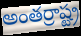
అంతర్రాష్ట్ర